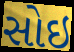
સોઇ